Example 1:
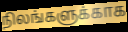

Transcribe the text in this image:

நிலங்களுக்காக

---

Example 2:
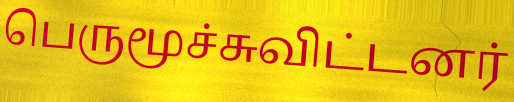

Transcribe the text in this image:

பெருமூச்சுவிட்டனர்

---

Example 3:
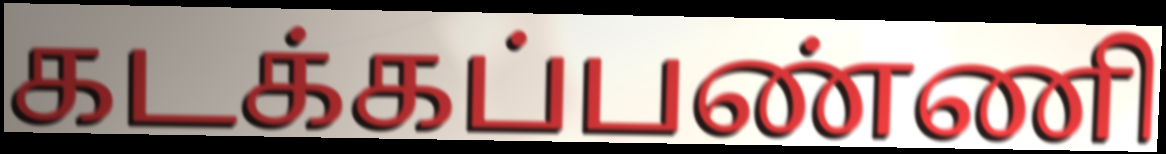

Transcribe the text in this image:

கடக்கப்பண்ணி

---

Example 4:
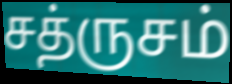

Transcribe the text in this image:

சத்ருசம்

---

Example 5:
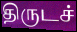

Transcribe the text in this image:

திருடச்